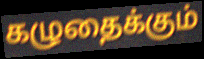
கழுதைக்கும்